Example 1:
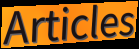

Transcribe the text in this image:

Articles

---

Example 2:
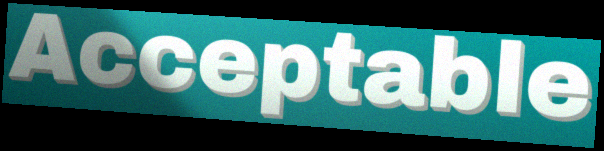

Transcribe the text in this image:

Acceptable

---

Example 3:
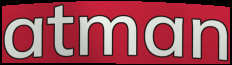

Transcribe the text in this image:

atman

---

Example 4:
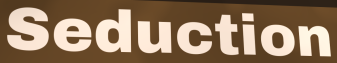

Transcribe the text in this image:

Seduction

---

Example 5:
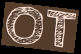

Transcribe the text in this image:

OT